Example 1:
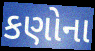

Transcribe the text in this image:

કણોના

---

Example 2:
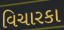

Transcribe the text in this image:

વિચારકા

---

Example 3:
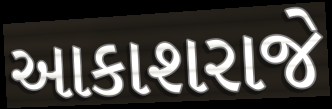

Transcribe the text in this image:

આકાશરાજે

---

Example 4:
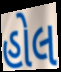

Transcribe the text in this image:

હોલ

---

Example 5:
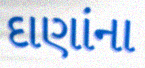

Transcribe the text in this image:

દાણાંના